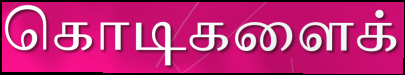
கொடிகளைக்